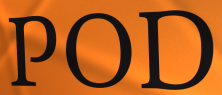
POD